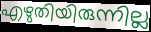
എഴുതിയിരുന്നില്ല